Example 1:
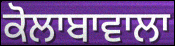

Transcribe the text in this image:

ਕੋਲਾਬਾਵਾਲਾ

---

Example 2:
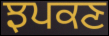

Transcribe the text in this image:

ਝਪਕਣ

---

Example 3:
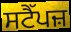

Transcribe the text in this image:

ਸਟੈੱਪਜ਼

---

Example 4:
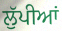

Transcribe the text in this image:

ਲੁੱਪੀਆਂ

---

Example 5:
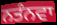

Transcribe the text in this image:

ਨਤੰਨਵਾ